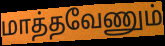
மாத்தவேணும்